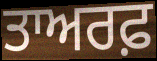
ਤਾਅਰਫ਼